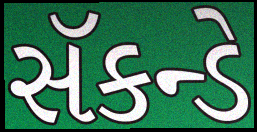
સૅકન્ડે